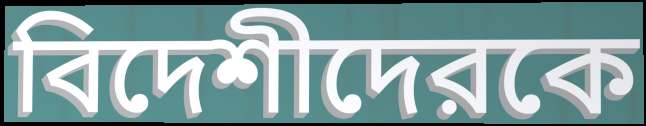
বিদেশীদেরকে